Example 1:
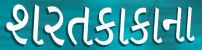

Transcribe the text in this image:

શરતકાકાના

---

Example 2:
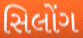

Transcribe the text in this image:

સિલોંગ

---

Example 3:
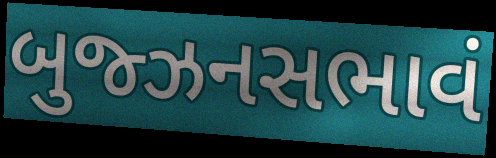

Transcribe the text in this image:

બુજ્ઝનસભાવં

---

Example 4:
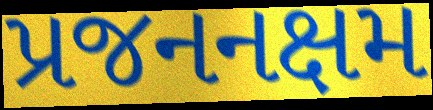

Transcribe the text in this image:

પ્રજનનક્ષમ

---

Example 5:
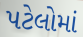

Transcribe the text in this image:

પટેલોમાં